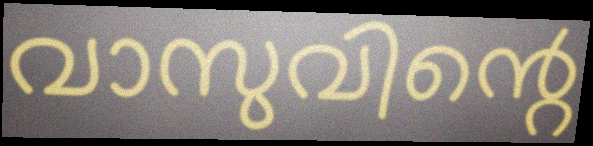
വാസുവിന്റെ